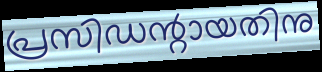
പ്രസിഡന്റായതിനു